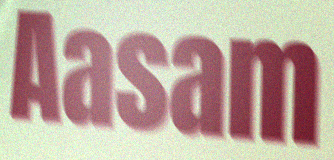
Aasam